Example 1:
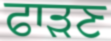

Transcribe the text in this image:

ਫਾੜਣ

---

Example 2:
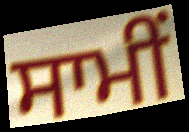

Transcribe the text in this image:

ਸਾਮੀਂ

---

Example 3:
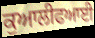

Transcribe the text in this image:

ਕੁਆਲੀਫਆਈ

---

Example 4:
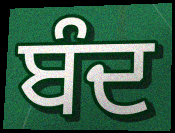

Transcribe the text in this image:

ਬੰਦ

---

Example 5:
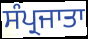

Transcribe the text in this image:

ਸੰਪ੍ਰਜਾਤਾ